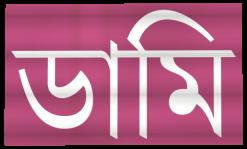
ডামি